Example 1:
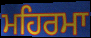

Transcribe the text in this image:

ਮਹਿਰਮਾ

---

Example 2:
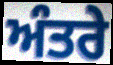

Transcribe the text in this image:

ਅੰਤਰੇ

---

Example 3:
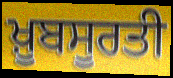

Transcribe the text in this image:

ਖ਼ੂਬਸੂਰਤੀ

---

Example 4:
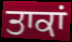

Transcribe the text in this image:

ਤਾਕਾਂ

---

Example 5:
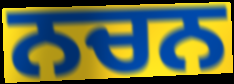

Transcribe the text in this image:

ਨਚਨ